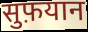
सुफ़यान